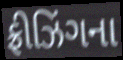
ફ્રીઝિંગના